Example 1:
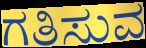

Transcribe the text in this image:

ಗತಿಸುವ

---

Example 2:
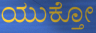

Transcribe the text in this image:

ಯುಕ್ತೋ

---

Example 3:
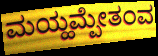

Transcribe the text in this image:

ಮಯ್ಹಮ್ಪೇತಂವ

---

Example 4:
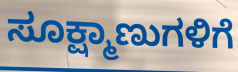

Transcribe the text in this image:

ಸೂಕ್ಷ್ಮಾಣುಗಳಿಗೆ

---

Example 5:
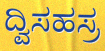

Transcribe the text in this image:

ದ್ವಿಸಹಸ್ರ